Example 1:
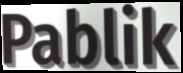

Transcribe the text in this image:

Pablik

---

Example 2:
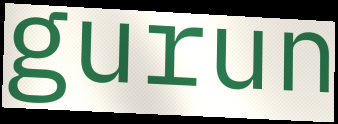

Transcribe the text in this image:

gurun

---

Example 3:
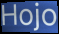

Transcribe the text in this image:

Hojo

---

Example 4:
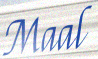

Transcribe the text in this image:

Maal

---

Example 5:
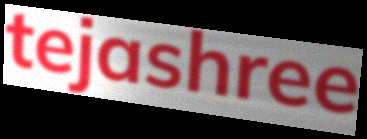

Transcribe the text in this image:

tejashree